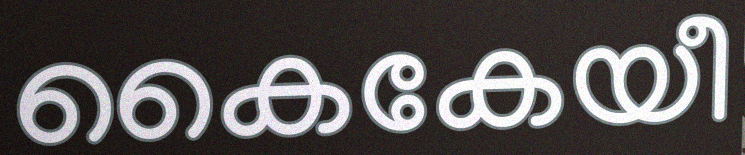
കൈകേയീ